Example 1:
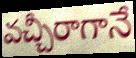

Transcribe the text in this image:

వచ్చీరాగానే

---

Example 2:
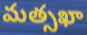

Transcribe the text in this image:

మత్సఖా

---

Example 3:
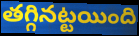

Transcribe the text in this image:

తగ్గినట్టయింది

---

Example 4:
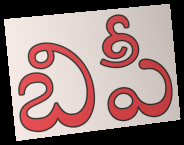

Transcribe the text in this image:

బిపీ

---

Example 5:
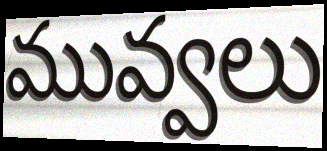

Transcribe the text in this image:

మువ్వలు